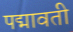
पद्मावती